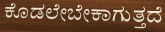
ಕೊಡಲೇಬೇಕಾಗುತ್ತದೆ